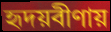
হৃদয়বীণায়